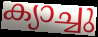
ക്യാച്ചു